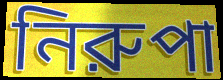
নিরুপা